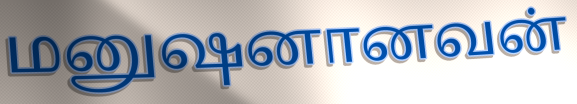
மனுஷனானவன்